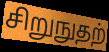
சிறுநுதற்